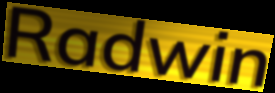
Radwin